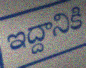
ఇద్దానికి